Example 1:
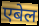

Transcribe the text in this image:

एबेल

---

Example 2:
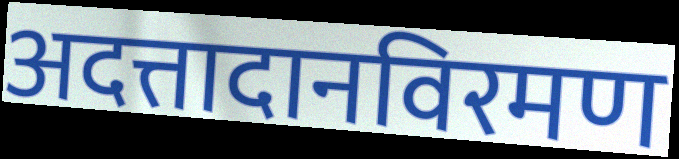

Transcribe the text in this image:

अदत्तादानविरमण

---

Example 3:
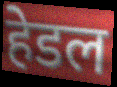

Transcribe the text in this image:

हेडल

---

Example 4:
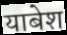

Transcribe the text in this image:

याबेश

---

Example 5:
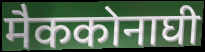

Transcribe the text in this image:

मैककोनाघी